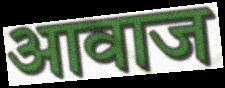
आवाज